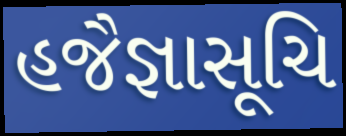
હજૈજ્ઞાસૂચિ